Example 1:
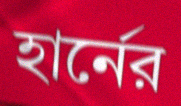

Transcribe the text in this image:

হার্নের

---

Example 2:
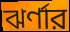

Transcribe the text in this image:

ঝর্ণার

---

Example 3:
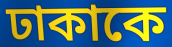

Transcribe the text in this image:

ঢাকাকে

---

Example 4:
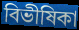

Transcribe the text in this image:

বিভীষিকা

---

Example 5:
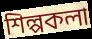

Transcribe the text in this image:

শিল্পকলা